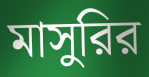
মাসুরির